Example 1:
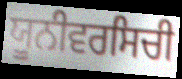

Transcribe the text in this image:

ਯੂਨੀਵਰਸਿਚੀ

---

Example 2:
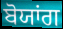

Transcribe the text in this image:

ਬੋਯਾਂਗ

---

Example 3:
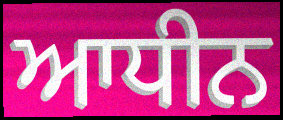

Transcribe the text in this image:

ਆਧੀਨ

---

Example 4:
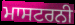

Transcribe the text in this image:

ਮਾਸਟਰਨੀ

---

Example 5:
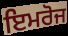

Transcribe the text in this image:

ਇਮਰੋਜ